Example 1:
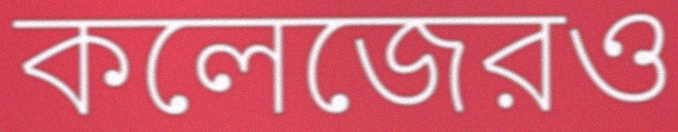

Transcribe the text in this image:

কলেজেরও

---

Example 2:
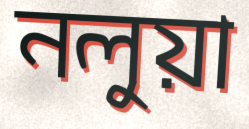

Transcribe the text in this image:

নলুয়া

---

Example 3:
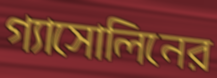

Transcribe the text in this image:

গ্যাসোলিনের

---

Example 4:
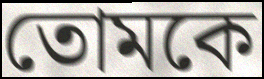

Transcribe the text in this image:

তোমকে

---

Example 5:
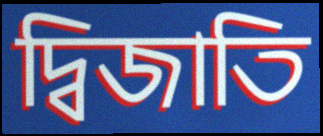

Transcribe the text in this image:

দ্বিজাতি